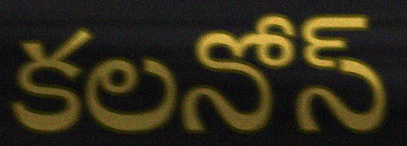
కలనోస్